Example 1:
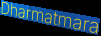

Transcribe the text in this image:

Dharmatmara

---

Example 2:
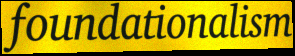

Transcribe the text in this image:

foundationalism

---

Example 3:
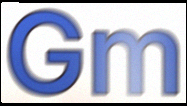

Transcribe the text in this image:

Gm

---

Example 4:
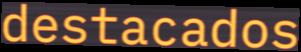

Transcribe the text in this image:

destacados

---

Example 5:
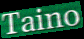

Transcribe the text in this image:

Taino